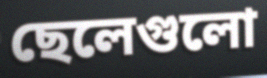
ছেলেগুলো